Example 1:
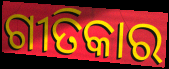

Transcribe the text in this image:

ଗୀତିକାର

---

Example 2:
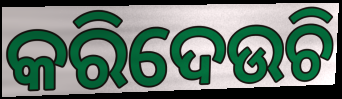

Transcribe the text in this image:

କରିଦେଉଚି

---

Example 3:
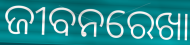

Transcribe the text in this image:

ଜୀବନରେଖା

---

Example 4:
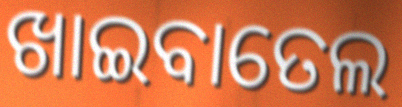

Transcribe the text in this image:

ଖାଇବାତେଲ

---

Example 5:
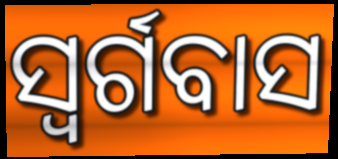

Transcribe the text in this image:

ସ୍ଵର୍ଗବାସ